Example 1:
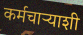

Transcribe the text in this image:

कर्मचाऱ्याशी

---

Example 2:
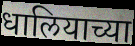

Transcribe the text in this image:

धालियाच्या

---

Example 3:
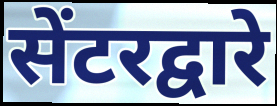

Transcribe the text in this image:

सेंटरद्वारे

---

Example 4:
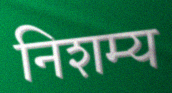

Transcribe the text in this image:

निशम्य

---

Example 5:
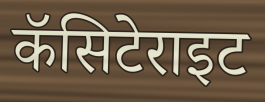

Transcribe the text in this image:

कॅसिटेराइट